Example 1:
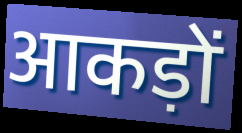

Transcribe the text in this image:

आकड़ों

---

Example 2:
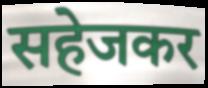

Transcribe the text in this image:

सहेजकर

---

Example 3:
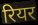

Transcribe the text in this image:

रियर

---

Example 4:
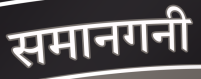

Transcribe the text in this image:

समानगनी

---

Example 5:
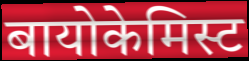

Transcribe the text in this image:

बायोकेमिस्ट